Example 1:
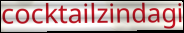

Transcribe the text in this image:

cocktailzindagi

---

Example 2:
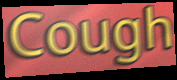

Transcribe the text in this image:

Cough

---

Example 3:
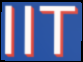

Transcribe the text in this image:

IIT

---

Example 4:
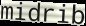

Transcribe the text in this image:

midrib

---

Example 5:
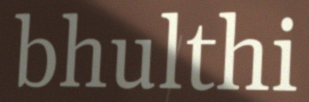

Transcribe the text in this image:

bhulthi